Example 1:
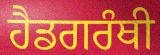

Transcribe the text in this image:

ਹੈਡਗਰੰਥੀ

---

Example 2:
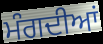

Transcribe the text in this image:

ਮੰਗਦੀਆਂ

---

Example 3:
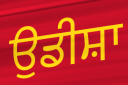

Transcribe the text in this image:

ਉਡੀਸ਼ਾ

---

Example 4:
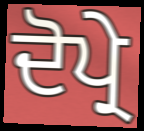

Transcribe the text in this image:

ਦੋਪ੍ਰੇ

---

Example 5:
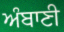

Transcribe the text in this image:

ਅੰਬਾਣੀ